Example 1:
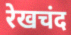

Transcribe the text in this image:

रेखचंद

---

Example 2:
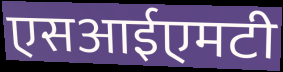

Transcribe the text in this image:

एसआईएमटी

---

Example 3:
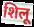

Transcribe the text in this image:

शिलू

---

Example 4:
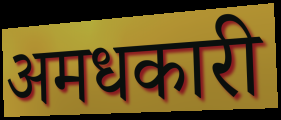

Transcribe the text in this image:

अमधकारी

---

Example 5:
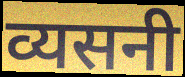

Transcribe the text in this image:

व्यसनी